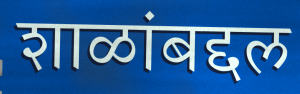
शाळांबद्दल